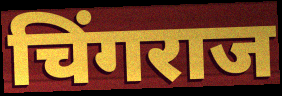
चिंगराज